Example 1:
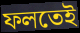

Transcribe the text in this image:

ফলতেই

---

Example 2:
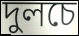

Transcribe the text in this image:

দুলচে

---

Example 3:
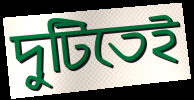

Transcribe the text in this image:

দুটিতেই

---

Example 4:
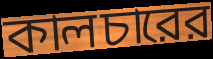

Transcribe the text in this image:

কালচারের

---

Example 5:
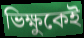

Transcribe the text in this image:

ভিক্ষুকেই